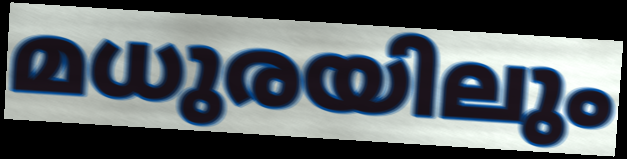
മധുരയിലും